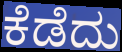
ಕೆಡೆದು